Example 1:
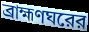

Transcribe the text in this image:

ব্রাহ্মণঘরের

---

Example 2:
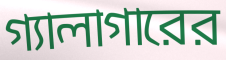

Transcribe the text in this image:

গ্যালাগারের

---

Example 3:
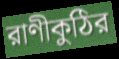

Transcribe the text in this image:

রাণীকুঠির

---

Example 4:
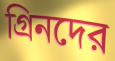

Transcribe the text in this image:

গ্রিনদের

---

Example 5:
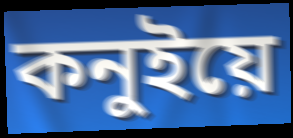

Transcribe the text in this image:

কনুইয়ে